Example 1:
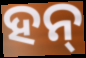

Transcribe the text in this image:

ହନ୍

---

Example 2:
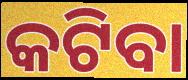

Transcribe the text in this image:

କଟିବା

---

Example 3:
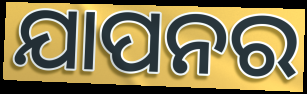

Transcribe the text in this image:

ଯାପନର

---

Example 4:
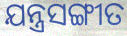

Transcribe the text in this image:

ଯନ୍ତ୍ରସଙ୍ଗୀତ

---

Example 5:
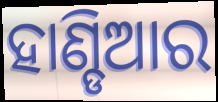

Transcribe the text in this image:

ହାଣ୍ଡିଆର